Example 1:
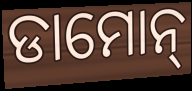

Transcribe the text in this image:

ଡାମୋନ୍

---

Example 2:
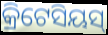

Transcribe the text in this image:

କ୍ରିଟେସିୟସ୍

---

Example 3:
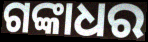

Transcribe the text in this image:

ଗଙ୍କାଧର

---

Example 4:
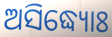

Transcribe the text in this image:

ଅସିଦ୍ଧ୍ୟୋଃ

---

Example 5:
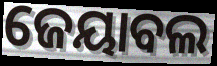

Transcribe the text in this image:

ଜେୟାବଲ